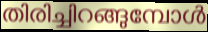
തിരിച്ചിറങ്ങുമ്പോൾ